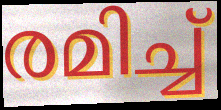
രമിച്ച്